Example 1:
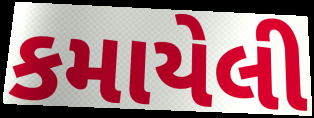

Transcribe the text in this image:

કમાયેલી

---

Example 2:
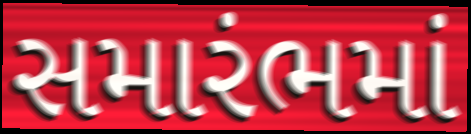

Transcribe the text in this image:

સમારંભમાં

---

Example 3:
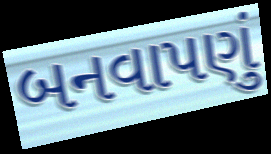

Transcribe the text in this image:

બનવાપણું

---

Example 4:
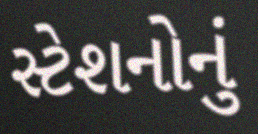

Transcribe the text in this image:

સ્ટેશનોનું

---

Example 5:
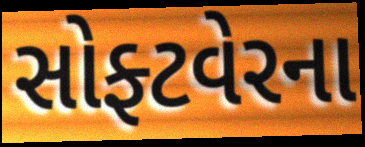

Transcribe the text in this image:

સોફ્ટવેરના